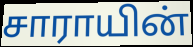
சாராயின்